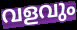
വളവും